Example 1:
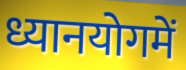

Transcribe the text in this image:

ध्यानयोगमें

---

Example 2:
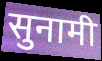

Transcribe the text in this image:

सुनामी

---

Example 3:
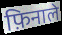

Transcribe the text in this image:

फ़िनाले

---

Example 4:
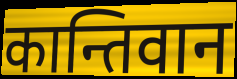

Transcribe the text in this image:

कान्तिवान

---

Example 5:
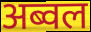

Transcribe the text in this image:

अब्वल